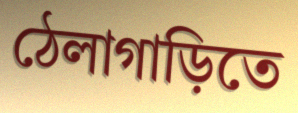
ঠেলাগাড়িতে